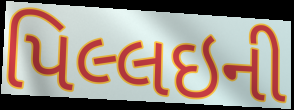
પિલ્લઇની